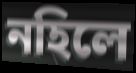
নহিলে